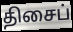
திசைப்